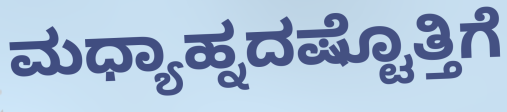
ಮಧ್ಯಾಹ್ನದಷ್ಟೊತ್ತಿಗೆ